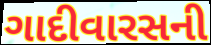
ગાદીવારસની